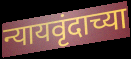
न्यायवृंदाच्या